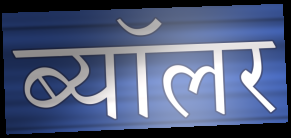
ब्यॉलर